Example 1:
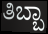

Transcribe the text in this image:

ತಿಬ್ಬಾ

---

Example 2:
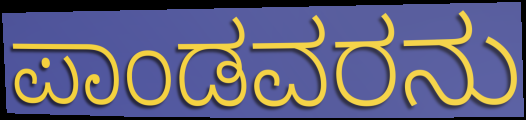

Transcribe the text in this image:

ಪಾಂಡವರನು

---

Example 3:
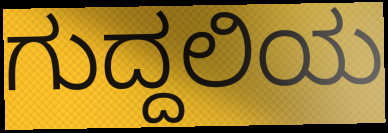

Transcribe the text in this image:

ಗುದ್ದಲಿಯ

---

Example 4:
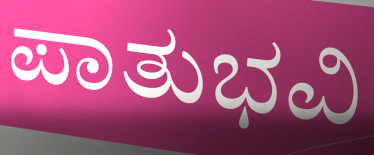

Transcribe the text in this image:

ಪಾತುಭವಿ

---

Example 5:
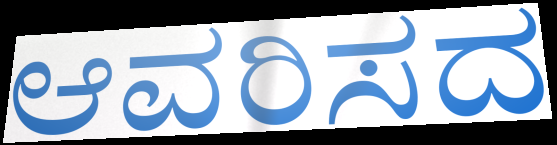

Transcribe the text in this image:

ಆವರಿಸದ